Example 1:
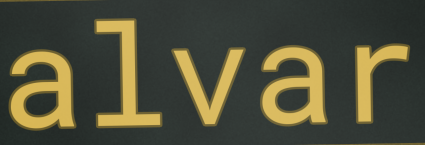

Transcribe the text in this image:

alvar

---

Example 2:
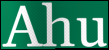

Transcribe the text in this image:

Ahu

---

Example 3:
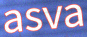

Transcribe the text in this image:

asva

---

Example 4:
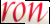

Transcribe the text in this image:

ron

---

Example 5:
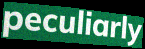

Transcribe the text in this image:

peculiarly